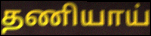
தணியாய்